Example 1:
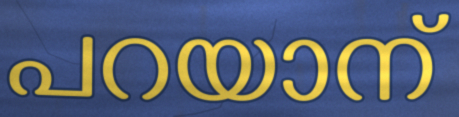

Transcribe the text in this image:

പറയാന്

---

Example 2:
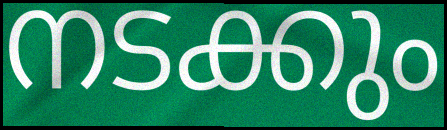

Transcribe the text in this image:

നടക്കും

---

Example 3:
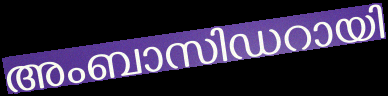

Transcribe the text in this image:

അംബാസിഡറായി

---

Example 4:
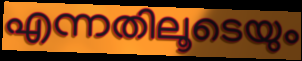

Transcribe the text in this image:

എന്നതിലൂടെയും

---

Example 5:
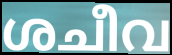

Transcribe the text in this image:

ശചീവ